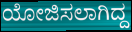
ಯೋಜಿಸಲಾಗಿದ್ದ